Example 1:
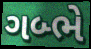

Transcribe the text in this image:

ગબ્ભે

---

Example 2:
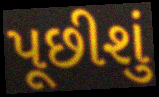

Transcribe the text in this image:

પૂછીશું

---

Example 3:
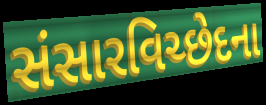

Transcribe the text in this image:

સંસારવિચ્છેદના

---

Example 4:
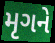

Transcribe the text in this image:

મૃગને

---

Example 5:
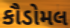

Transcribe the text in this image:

કૌડોમલ